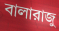
বালারাজু